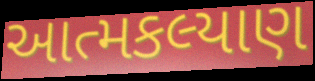
આત્મકલ્યાણ